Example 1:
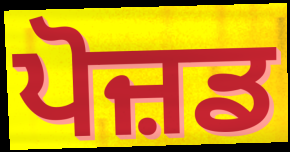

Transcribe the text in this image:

ਪੋਜ਼ਡ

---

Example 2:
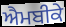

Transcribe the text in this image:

ਐਮਬੀਕੇ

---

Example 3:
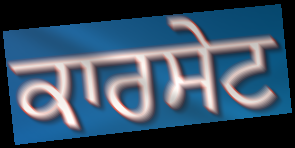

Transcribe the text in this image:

ਕਾਰਸੇਟ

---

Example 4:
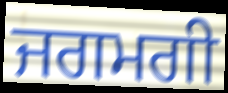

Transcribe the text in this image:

ਜਗਮਗੀ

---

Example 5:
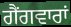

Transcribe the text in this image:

ਗੈਂਗਵਾਰਾਂ